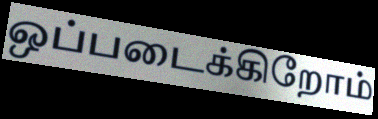
ஒப்படைக்கிறோம்